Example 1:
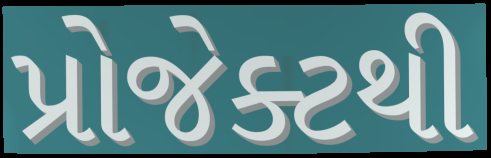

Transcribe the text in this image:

પ્રોજેક્ટથી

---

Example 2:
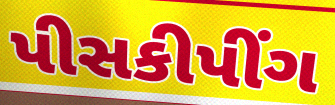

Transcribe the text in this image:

પીસકીપીંગ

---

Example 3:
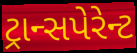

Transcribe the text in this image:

ટ્રાન્સપેરેન્ટ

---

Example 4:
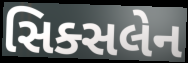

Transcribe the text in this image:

સિક્સલેન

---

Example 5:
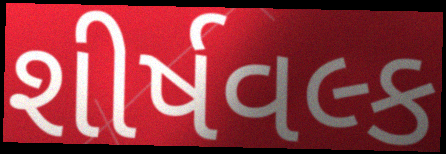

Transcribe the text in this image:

શીર્ષવલ્ક